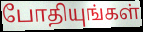
போதியுங்கள்